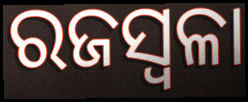
ରଜସ୍ବଳା